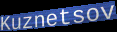
Kuznetsov